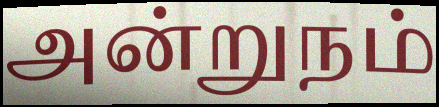
அன்றுநம்